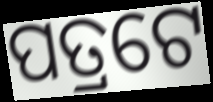
ପତ୍ରଟେ